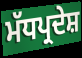
ਮੱਧਪ੍ਰਦੇਸ਼